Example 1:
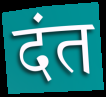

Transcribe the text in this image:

दंत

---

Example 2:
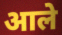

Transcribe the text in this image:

आले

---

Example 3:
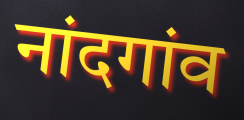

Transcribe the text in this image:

नांदगांव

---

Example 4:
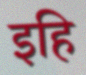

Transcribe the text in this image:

इहि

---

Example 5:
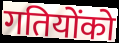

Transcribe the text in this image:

गतियोंको